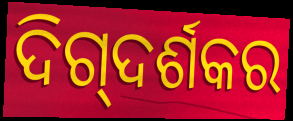
ଦିଗ୍‍ଦର୍ଶକର